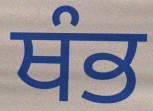
ਥੰਭ